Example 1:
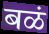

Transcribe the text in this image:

बळं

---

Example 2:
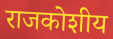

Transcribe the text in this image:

राजकोशीय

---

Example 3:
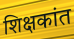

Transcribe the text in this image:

शिक्षकांत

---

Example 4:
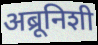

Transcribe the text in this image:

अब्रूनिशी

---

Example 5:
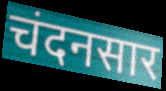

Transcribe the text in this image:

चंदनसार